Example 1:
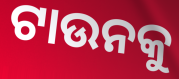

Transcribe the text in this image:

ଟାଉନକୁ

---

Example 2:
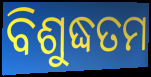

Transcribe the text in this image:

ବିଶୁଦ୍ଧତମ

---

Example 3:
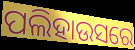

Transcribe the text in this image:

ପଲିହାଉସରେ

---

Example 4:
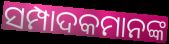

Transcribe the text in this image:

ସମ୍ପାଦକମାନଙ୍କ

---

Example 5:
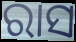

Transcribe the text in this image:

ରାସ